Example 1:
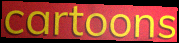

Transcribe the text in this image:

cartoons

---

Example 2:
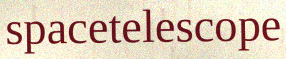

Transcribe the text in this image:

spacetelescope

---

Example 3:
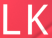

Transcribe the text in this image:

LK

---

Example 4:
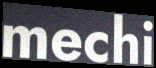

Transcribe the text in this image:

mechi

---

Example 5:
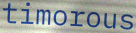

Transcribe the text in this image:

timorous